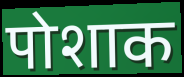
पोशाक